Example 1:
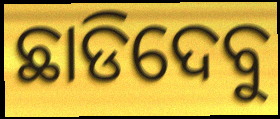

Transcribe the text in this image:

ଛାଡିଦେବୁ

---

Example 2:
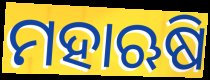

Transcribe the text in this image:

ମହାଋଷି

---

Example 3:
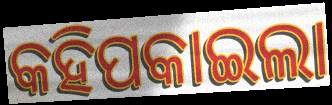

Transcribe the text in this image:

କହିପକାଇଲା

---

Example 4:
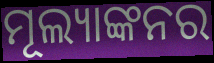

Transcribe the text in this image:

ମୂଲ୍ୟାଙ୍କନର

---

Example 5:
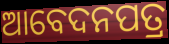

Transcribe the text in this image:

ଆବେଦନପତ୍ର